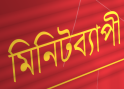
মিনিটব্যাপী